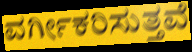
ವರ್ಗೀಕರಿಸುತ್ತವೆ